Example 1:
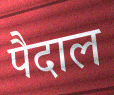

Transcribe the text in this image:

पैदाल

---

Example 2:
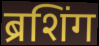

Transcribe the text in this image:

ब्रशिंग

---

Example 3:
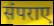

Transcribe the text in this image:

संपराए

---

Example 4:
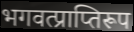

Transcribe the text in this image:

भगवत्प्राप्तिरूप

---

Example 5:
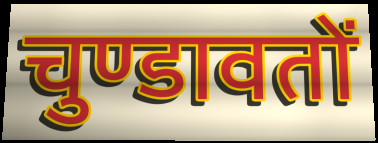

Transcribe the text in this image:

चुण्डावतों